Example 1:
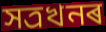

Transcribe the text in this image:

সত্ৰখনৰ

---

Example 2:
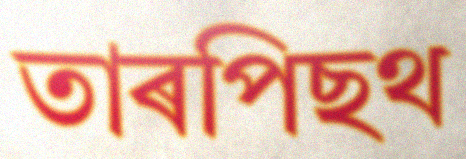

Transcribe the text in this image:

তাৰপিছথ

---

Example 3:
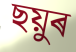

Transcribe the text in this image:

ছয়ুৰ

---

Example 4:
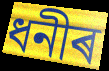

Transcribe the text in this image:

ধনীৰ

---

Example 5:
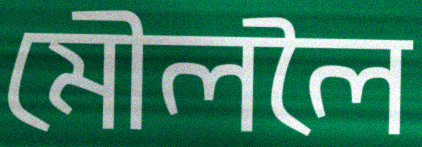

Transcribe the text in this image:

মৌললৈ